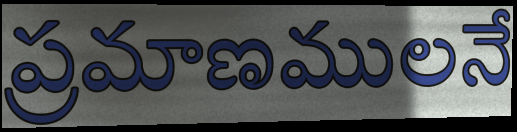
ప్రమాణములనే